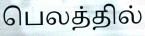
பெலத்தில்